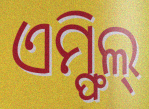
ଏମ୍ଫିଲ୍